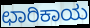
ಛಾರಿಕಾಯ